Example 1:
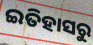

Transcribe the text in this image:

ଇତିହାସରୁ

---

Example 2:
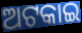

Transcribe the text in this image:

ଅଟକାଇ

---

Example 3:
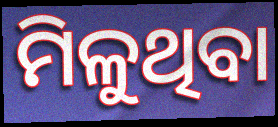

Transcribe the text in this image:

ମିଳୁଥିବା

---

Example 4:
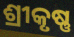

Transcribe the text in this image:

ଶ୍ରୀକୃଷ୍ଣ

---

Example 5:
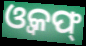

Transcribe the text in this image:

ଓ୍ୱକଫ୍